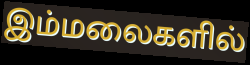
இம்மலைகளில்